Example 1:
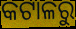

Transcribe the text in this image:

କଟାଳରୁ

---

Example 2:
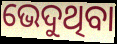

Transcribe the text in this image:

ଭେଦୁଥିବା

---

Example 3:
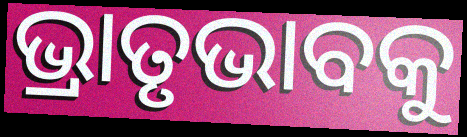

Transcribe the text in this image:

ଭ୍ରାତୃଭାବକୁ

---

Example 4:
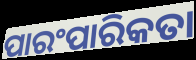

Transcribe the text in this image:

ପାରଂପାରିକତା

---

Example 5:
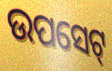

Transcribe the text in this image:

ଉପସେଟ୍